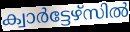
ക്വാർട്ടേഴ്സിൽ